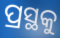
ପ୍ରସ୍ଥକୁ